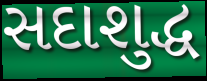
સદાશુદ્ધ